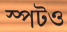
স্পটও